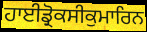
ਹਾਈਡ੍ਰੋਕਸੀਕੁਮਾਰਿਨ